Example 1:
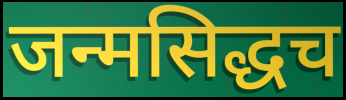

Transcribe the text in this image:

जन्मसिद्धच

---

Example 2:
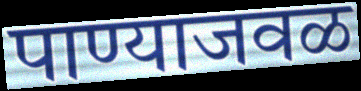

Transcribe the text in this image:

पाण्याजवळ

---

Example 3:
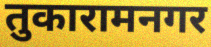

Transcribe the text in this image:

तुकारामनगर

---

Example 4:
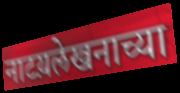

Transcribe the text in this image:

नाटय़लेखनाच्या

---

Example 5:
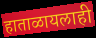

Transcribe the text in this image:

हाताळायलाही